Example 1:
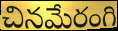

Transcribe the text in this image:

చినమేరంగి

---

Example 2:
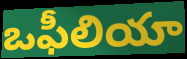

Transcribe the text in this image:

ఒఫీలియా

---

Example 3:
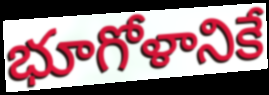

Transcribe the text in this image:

భూగోళానికే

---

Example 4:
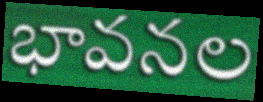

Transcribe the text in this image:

భావనల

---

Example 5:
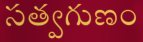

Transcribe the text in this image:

సత్వగుణం